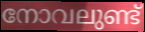
നോവലുണ്ട്